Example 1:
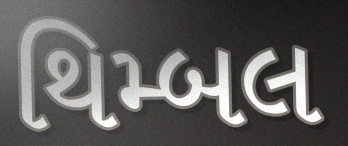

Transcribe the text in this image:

થિમ્બલ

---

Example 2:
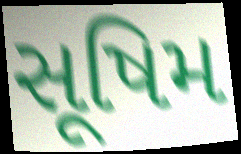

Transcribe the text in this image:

સૂષિમ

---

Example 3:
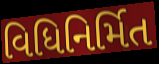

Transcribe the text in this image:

વિધિનિર્મિત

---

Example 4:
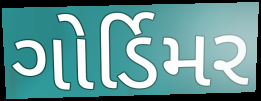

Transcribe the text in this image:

ગોર્ડિમર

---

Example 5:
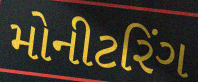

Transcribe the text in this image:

મોનીટરિંગ